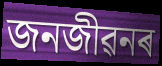
জনজীৱনৰ